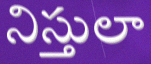
నిస్తులా